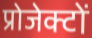
प्रोजेक्टों